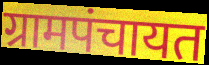
ग्रामपंचायत